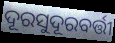
ଦୂରସୁଦୂରବର୍ତ୍ତୀ